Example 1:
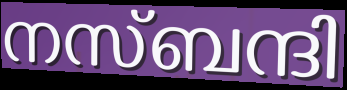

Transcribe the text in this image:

നസ്ബന്ദി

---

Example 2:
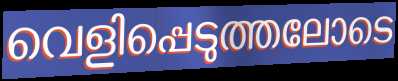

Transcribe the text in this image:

വെളിപ്പെടുത്തലോടെ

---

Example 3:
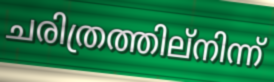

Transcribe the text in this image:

ചരിത്രത്തില്നിന്ന്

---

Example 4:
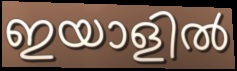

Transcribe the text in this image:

ഇയാളിൽ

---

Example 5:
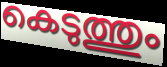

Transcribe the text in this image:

കെടുത്തും